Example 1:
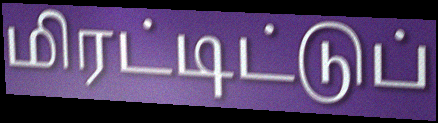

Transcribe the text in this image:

மிரட்டிட்டுப்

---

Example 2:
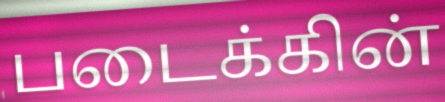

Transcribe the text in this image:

படைக்கின்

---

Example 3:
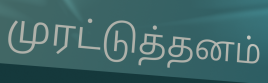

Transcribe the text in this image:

முரட்டுத்தனம்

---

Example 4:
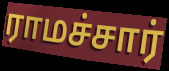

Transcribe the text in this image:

ராமச்சார்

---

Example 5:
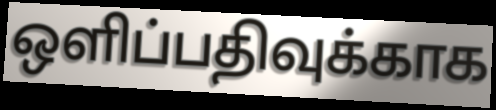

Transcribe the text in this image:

ஒளிப்பதிவுக்காக